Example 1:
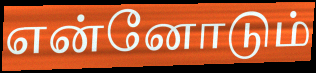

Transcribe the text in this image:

என்னோடும்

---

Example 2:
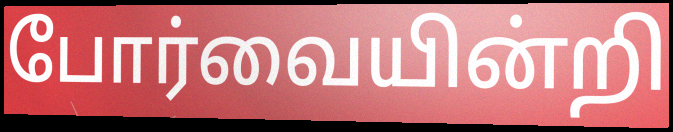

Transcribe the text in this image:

போர்வையின்றி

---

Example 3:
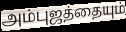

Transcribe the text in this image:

அம்புஜத்தையும்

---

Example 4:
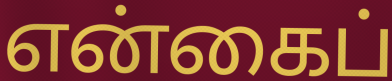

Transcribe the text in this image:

என்கைப்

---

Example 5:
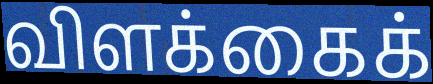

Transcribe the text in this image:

விளக்கைக்